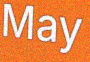
May